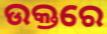
ଉକ୍ତରେ